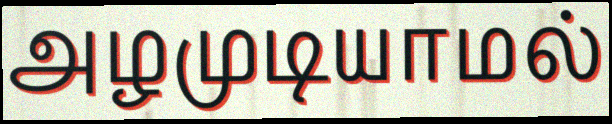
அழமுடியாமல்